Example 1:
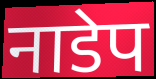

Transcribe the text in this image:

नाडेप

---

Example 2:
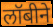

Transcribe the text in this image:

लॉबीने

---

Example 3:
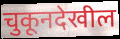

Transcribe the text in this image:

चुकूनदेखील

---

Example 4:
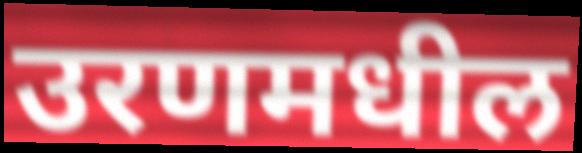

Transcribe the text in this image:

उरणमधील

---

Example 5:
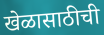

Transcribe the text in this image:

खेळासाठीची